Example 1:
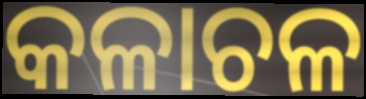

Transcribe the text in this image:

କଳାଚଳ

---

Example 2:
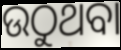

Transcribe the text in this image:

ଉଠୁଥବା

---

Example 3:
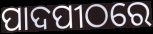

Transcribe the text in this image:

ପାଦପୀଠରେ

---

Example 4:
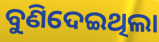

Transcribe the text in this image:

ବୁଣିଦେଇଥିଲା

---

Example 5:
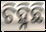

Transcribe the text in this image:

ଚିହ୍ନିଛି